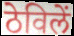
ठेविलें